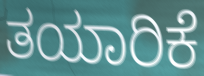
ತಯಾರಿಕೆ